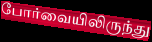
போர்வையிலிருந்து